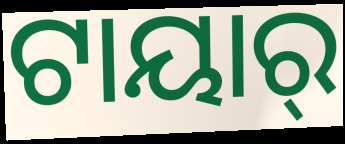
ଟାୟାର୍